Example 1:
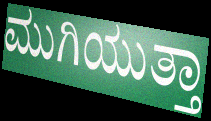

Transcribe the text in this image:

ಮುಗಿಯುತ್ತಾ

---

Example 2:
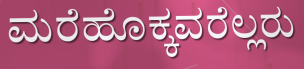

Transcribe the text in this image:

ಮರೆಹೊಕ್ಕವರೆಲ್ಲರು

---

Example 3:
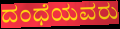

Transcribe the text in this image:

ದಂಧೆಯವರು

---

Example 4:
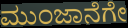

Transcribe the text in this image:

ಮುಂಜಾನೆಗೇ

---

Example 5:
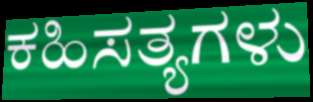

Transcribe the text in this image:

ಕಹಿಸತ್ಯಗಳು